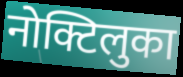
नोक्टिलुका